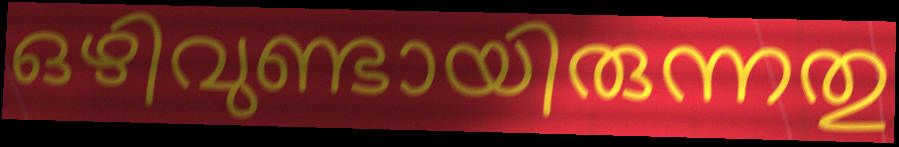
ഒഴിവുണ്ടായിരുന്നതു